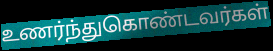
உணர்ந்துகொண்டவர்கள்